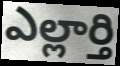
ఎల్లార్తి